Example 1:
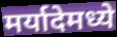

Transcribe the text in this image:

मर्यादेमध्ये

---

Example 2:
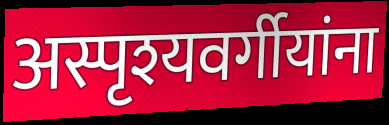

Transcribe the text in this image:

अस्पृश्यवर्गीयांना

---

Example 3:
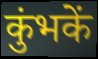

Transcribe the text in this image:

कुंभकें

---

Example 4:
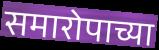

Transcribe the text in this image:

समारोपाच्या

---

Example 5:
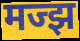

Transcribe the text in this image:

मज्झ